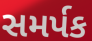
સમર્પક